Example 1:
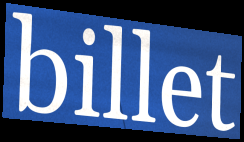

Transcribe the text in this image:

billet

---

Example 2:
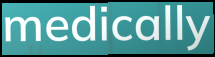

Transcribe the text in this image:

medically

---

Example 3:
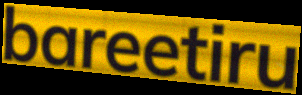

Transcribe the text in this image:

bareetiru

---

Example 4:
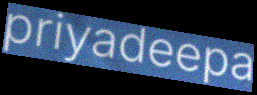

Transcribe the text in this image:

priyadeepa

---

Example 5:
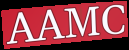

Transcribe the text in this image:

AAMC